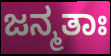
ಜನ್ಮತಾಃ